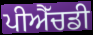
ਪੀਐੱਚਡੀ